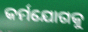
କର୍ମଯୋଗକୁ